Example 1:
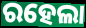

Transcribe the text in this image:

ରହେଲା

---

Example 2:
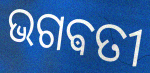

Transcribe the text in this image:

ଭଗଵତୀ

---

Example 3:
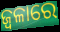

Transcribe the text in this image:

ଜ୍ୱଳାରେ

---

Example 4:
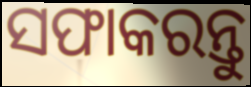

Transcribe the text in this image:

ସଫାକରନ୍ତୁ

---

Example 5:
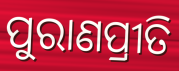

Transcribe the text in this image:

ପୁରାଣପ୍ରୀତି